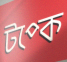
টপ্কে